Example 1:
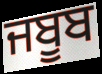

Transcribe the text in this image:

ਜਬੂਬ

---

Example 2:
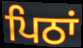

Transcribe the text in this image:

ਪਿਠਾਂ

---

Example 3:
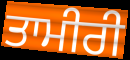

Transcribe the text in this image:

ਤਾਮੀਰੀ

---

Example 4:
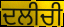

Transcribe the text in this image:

ਦਲੀਚੀ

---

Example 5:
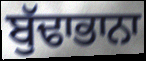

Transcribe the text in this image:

ਬੁੱਢਾਭਾਨਾ